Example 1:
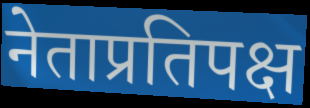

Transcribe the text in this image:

नेताप्रतिपक्ष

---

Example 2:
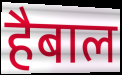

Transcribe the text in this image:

हैबाल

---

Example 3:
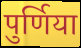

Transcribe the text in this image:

पुर्णिया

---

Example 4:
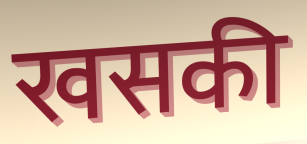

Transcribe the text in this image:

खसकी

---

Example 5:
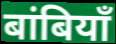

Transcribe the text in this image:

बांबियाँ